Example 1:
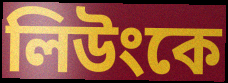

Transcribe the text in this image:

লিউংকে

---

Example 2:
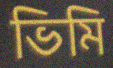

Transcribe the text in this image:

ভিমি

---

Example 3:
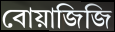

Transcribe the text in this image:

বোয়াজিজি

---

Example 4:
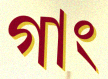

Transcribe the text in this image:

গাং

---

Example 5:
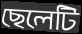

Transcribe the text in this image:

ছেলেটি